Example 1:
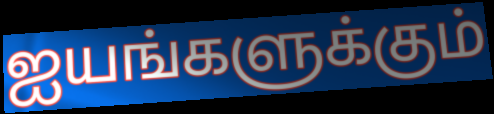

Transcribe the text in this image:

ஐயங்களுக்கும்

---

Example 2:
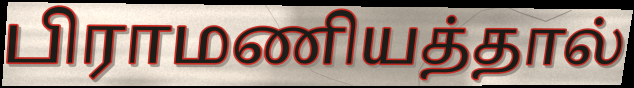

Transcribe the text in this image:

பிராமணியத்தால்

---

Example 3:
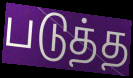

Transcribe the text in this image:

படுத்த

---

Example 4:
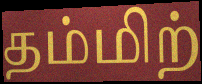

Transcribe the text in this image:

தம்மிற்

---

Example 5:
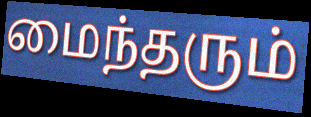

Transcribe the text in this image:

மைந்தரும்